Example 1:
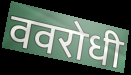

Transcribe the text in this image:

ववरोधी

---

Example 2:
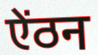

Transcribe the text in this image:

ऐंठन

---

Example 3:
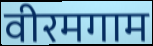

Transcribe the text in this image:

वीरमगाम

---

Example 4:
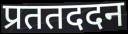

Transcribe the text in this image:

प्रततददन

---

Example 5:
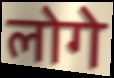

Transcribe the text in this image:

लोगे